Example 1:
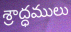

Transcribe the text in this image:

శ్రాద్ధములు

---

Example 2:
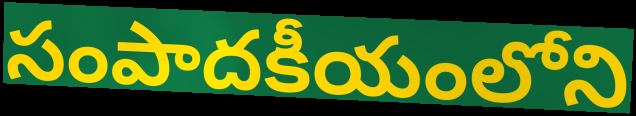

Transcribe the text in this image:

సంపాదకీయంలోని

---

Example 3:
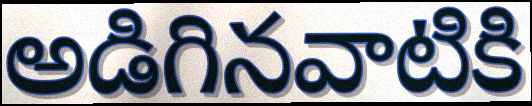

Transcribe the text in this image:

అడిగినవాటికి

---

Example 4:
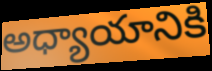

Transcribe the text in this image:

అధ్యాయానికి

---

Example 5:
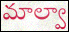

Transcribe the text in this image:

మాల్వా